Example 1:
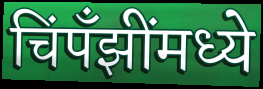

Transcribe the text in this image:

चिंपँझींमध्ये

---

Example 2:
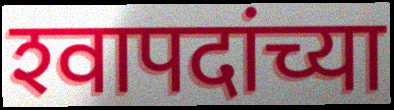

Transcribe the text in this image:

श्‍वापदांच्या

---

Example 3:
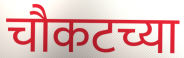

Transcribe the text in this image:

चौकटच्या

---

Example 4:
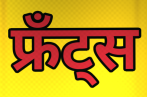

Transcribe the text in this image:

फ्रँट्स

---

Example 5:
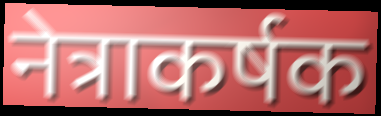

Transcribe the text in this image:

नेत्राकर्षक